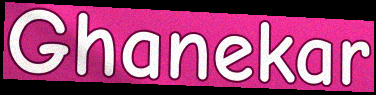
Ghanekar